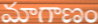
మాగాణం